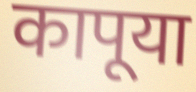
कापूया